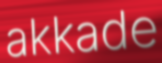
akkade